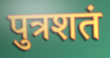
पुत्रशतं